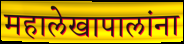
महालेखापालांना